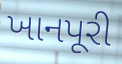
ખાનપૂરી